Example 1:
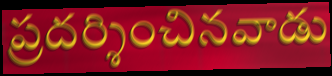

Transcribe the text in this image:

ప్రదర్శించినవాడు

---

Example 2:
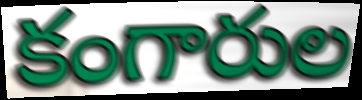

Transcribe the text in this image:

కంగారుల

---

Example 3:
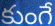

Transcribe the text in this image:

కుంగే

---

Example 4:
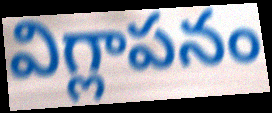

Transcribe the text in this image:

విగ్లాపనం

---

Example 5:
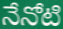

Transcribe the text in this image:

నేనోటి